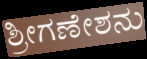
ಶ್ರೀಗಣೇಶನು